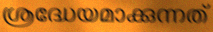
ശ്രദ്ധേയമാക്കുന്നത്